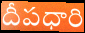
దీపధారి